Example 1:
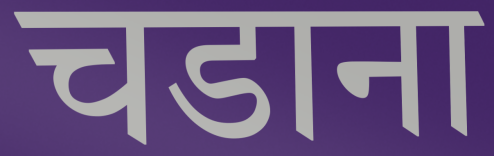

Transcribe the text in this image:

चडाना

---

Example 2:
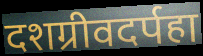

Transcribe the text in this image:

दशग्रीवदर्पहा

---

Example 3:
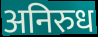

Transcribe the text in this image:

अनिरुध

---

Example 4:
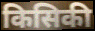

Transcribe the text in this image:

किसिकी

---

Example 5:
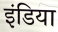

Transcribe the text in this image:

इ़ंडिया